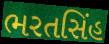
ભરતસિંહ